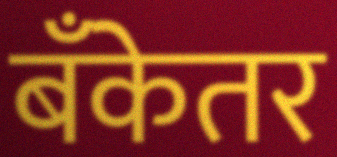
बँकेतर